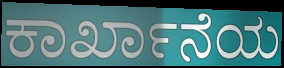
ಕಾರ್ಖಾನೆಯ